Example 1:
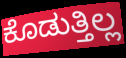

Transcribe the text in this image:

ಕೊಡುತ್ತಿಲ್ಲ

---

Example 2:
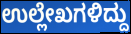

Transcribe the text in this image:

ಉಲ್ಲೇಖಗಳಿದ್ದು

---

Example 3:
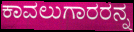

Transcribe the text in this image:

ಕಾವಲುಗಾರರನ್ನ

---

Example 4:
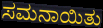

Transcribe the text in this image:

ಸಮನಾಯಿತು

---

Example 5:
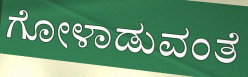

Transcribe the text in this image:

ಗೋಳಾಡುವಂತೆ